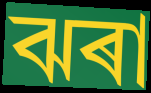
ঝৰা